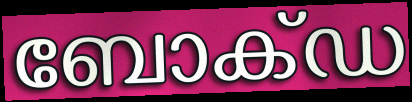
ബോക്ഡ